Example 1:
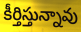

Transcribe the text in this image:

కీర్తిస్తున్నావు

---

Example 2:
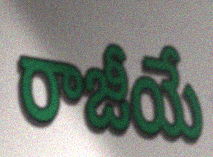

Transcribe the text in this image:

రాజీయే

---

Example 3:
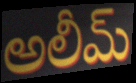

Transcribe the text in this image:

అలీమ్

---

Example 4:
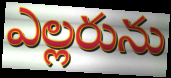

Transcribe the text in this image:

ఎల్లరును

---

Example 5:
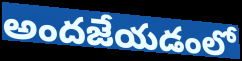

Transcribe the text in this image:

అందజేయడంలో